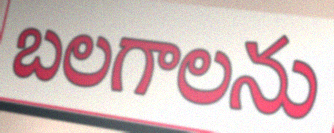
బలగాలను